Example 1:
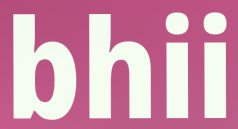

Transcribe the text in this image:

bhii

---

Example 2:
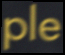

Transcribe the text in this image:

ple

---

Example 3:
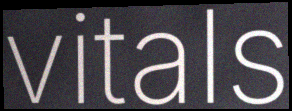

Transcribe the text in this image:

vitals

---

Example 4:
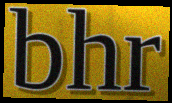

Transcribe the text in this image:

bhr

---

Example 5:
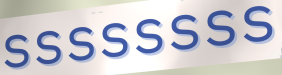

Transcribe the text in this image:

ssssssss